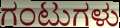
ಗಂಟುಗಳು